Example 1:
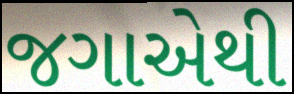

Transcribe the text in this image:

જગાએથી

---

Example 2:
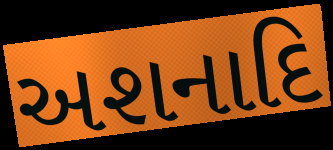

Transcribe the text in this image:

અશનાદિ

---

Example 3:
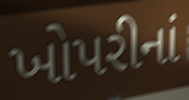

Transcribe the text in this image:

ખોપરીનાં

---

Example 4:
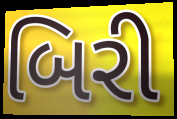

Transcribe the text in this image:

બિરી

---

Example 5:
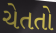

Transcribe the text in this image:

ચેતતો